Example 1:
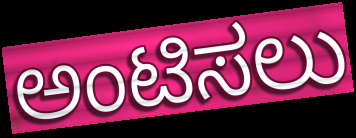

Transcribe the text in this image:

ಅಂಟಿಸಲು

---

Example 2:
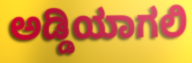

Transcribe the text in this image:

ಅಡ್ಡಿಯಾಗಲಿ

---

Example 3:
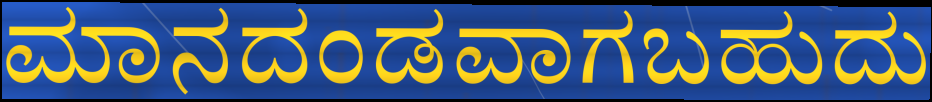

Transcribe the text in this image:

ಮಾನದಂಡವಾಗಬಹುದು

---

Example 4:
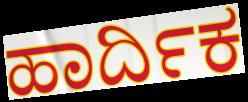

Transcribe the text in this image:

ಹಾರ್ದಿಕ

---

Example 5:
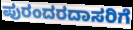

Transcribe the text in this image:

ಪುರಂದರದಾಸರಿಗೆ